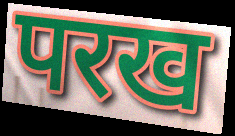
परख